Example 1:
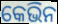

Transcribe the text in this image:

କେଭିନ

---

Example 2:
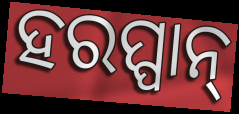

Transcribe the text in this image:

ହରପ୍ପାନ୍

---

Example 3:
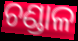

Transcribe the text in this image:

ଚଣ୍ଡାଳ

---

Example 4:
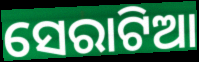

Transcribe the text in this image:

ସେରାଟିଆ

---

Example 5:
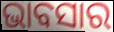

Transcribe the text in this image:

ଭାବସାର